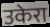
उकेरा